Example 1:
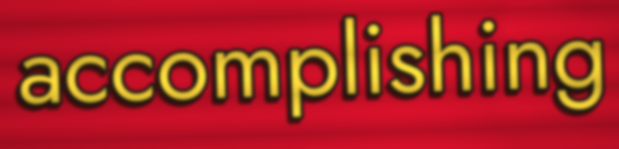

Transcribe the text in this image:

accomplishing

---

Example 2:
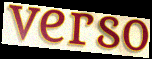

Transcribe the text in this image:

verso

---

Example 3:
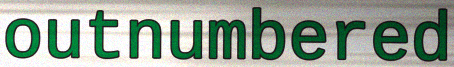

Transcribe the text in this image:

outnumbered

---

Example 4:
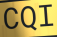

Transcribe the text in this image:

CQI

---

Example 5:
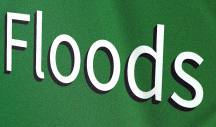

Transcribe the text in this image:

Floods